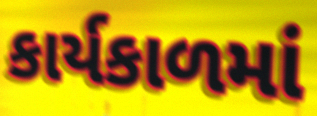
કાર્યકાળમાં